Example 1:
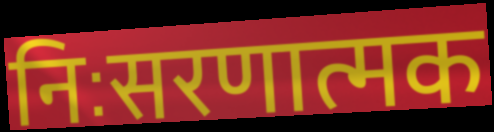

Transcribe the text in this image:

निःसरणात्मक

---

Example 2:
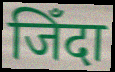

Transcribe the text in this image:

जिँदा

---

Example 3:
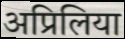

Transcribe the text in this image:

अप्रिलिया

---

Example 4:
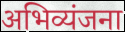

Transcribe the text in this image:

अभिव्यंजना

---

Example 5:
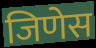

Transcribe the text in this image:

जिणेस